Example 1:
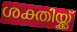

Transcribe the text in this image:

ശക്തിയ്ക്ക്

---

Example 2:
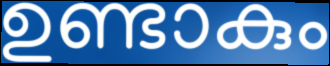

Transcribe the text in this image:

ഉണ്ടാകും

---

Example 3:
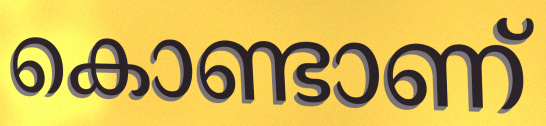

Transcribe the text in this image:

കൊണ്ടാണ്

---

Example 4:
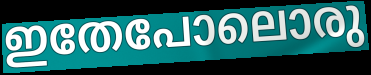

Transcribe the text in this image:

ഇതേപോലൊരു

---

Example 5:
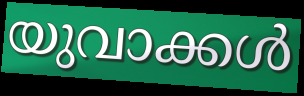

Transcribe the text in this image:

യുവാക്കൾ